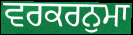
ਵਰਕਰਨੁਮਾ